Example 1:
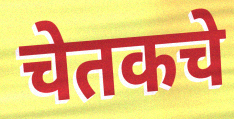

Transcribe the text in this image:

चेतकचे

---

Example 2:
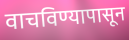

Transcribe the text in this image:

वाचविण्यापासून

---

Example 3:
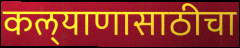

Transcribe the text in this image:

कल्याणासाठीचा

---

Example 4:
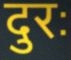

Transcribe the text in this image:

दुरः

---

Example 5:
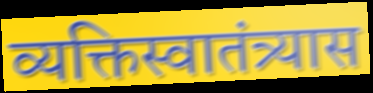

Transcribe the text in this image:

व्यक्तिस्वातंत्र्यास